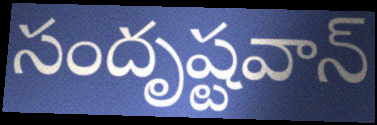
సందృష్టవాన్